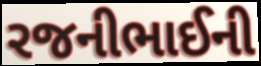
રજનીભાઈની